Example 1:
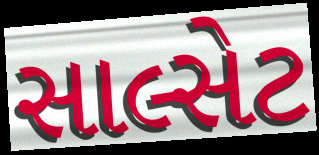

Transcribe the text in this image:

સાલ્સેટ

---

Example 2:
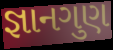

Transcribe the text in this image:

જ્ઞાનગુણ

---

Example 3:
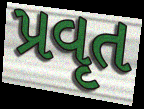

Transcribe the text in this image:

પ્રવૃત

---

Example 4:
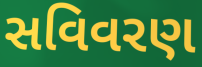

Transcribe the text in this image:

સવિવરણ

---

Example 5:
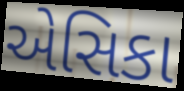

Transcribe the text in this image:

એસિકા